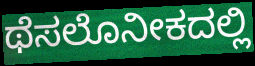
ಥೆಸಲೊನೀಕದಲ್ಲಿ